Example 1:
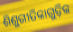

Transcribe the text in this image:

ଶିଶୁଗୀତିକାଗୁଡ଼ିକ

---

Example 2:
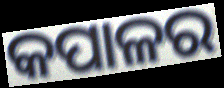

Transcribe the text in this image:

କପାଳର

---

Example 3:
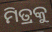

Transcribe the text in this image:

ମିତ୍ରକୁ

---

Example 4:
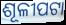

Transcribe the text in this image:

ଶୂଳୀପଟା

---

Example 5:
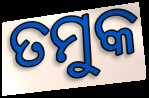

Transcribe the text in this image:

ତମୁକ